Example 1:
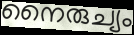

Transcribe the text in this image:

നൈരുച്യം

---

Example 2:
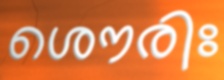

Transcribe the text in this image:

ശൌരിഃ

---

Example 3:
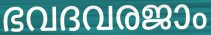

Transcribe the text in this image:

ഭവദവരജാം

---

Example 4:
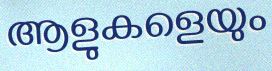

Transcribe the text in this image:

ആളുകളെയും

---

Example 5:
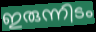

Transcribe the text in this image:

ഇരുന്നിടം